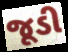
જૂડી